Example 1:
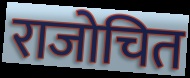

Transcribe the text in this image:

राजोचित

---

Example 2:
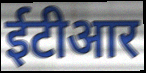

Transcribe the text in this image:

ईटीआर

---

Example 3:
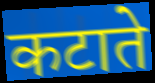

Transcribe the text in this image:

कटाते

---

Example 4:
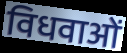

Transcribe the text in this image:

विधवाओं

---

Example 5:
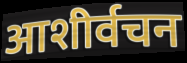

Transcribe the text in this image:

आशीर्वचन